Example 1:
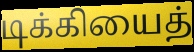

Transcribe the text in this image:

டிக்கியைத்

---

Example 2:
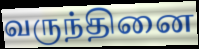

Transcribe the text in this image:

வருந்தினை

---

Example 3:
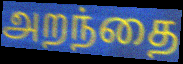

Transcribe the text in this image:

அறந்தை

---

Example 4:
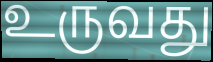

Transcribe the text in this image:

உருவது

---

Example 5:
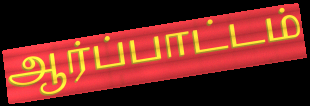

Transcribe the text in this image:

ஆர்ப்பாட்டம்